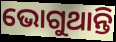
ଭୋଗୁଥାନ୍ତି